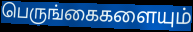
பெருங்கைகளையும்